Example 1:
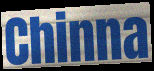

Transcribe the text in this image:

Chinna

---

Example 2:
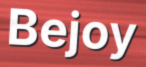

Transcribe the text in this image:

Bejoy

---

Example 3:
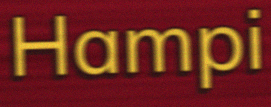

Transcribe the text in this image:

Hampi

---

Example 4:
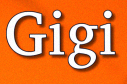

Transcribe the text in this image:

Gigi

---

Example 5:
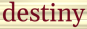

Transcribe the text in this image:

destiny